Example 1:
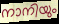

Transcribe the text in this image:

നാനിയും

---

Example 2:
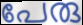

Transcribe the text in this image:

പേരു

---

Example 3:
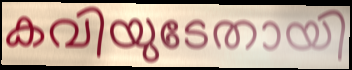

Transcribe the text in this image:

കവിയുടേതായി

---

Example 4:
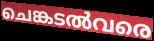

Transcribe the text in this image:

ചെങ്കടൽവരെ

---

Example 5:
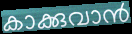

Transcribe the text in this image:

കാക്കുവാൻ